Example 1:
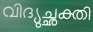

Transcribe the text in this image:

വിദ്യുച്ഛക്തി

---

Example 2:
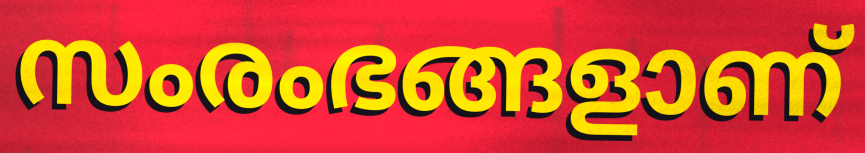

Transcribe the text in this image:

സംരംഭങ്ങളാണ്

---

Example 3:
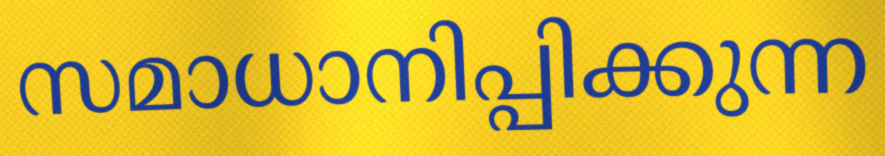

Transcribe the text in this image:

സമാധാനിപ്പിക്കുന്ന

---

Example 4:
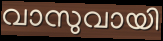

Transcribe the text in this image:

വാസുവായി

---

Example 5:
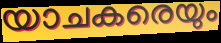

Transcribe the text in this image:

യാചകരെയും